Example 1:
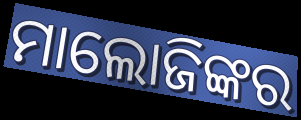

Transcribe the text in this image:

ମାଲୋଜିଙ୍କର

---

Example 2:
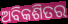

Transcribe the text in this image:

ଅବିକଶିତର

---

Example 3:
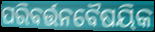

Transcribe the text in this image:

ପରିବର୍ତ୍ତନବୈଷୟିକ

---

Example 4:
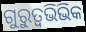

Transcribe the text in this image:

ଗୁରୁତ୍ଵଭିଭିକ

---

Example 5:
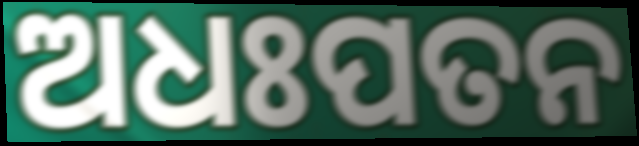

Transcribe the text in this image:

ଅଧଃପତନ